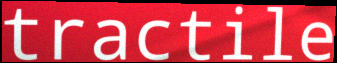
tractile